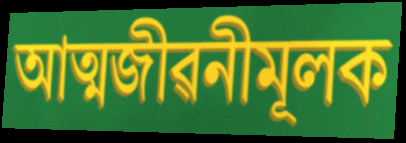
আত্মজীৱনীমূলক